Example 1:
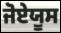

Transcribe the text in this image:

ਜੋਏਯੂਸ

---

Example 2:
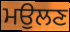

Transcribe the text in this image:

ਮਉਲਣ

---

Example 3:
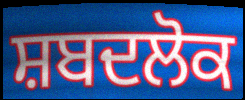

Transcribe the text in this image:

ਸ਼ਬਦਲੋਕ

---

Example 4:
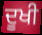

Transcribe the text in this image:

ਦੂਖੀ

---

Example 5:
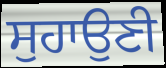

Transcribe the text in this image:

ਸੁਹਾਉਣੀ